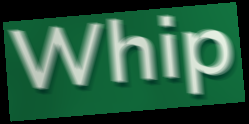
Whip